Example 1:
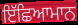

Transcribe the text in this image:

ਇੱਛਿਆਮਾਨ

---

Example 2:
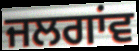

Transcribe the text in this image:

ਜਲਗਾਂਵ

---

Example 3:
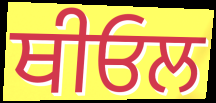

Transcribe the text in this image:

ਥੀਓਲ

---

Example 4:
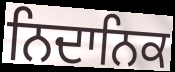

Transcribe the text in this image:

ਨਿਦਾਨਿਕ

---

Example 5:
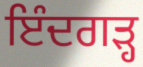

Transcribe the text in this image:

ਇੰਦਗੜ੍ਹ